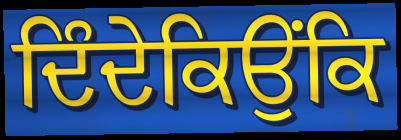
ਦਿੰਦੇਕਿਉਂਕਿ